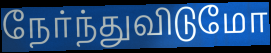
நேர்ந்துவிடுமோ